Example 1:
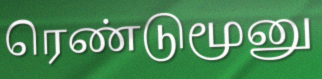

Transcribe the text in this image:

ரெண்டுமூனு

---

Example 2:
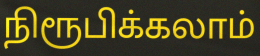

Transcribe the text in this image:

நிரூபிக்கலாம்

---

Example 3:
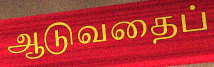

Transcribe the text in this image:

ஆடுவதைப்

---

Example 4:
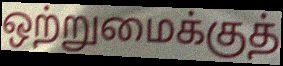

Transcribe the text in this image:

ஒற்றுமைக்குத்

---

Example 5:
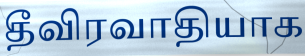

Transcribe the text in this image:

தீவிரவாதியாக